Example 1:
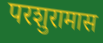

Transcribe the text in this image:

परशुरामास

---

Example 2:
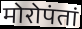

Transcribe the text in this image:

मोरोपंतां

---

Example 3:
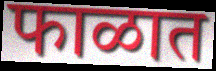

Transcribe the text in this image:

फाळात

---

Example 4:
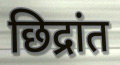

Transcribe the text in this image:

छिद्रांत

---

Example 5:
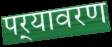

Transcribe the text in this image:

पर्यावरण